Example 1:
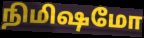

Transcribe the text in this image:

நிமிஷமோ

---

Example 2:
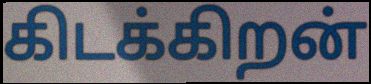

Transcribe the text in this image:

கிடக்கிறன்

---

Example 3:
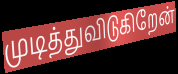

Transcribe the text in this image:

முடித்துவிடுகிறேன்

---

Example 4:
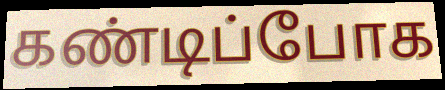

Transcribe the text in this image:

கண்டிப்போக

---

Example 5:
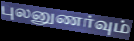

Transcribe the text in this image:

புலனுணர்வும்